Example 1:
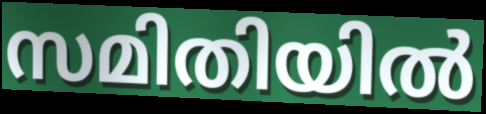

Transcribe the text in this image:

സമിതിയിൽ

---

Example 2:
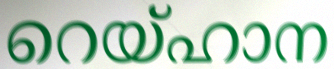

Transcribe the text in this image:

റെയ്ഹാന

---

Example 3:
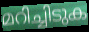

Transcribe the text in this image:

മറിച്ചിടുക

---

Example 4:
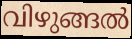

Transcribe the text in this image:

വിഴുങ്ങൽ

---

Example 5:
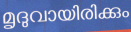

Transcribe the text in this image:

മൃദുവായിരിക്കും